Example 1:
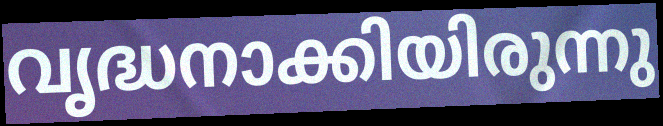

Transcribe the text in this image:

വൃദ്ധനാക്കിയിരുന്നു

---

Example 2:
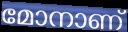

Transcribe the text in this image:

മോനാണ്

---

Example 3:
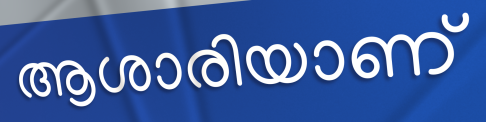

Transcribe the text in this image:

ആശാരിയാണ്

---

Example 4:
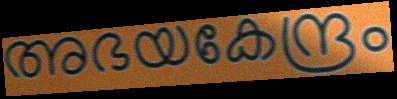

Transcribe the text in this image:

അഭയകേന്ദ്രം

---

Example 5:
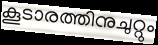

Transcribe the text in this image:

കൂടാരത്തിനുചുറ്റും